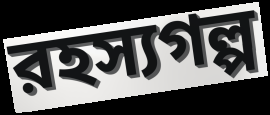
রহস্যগল্প